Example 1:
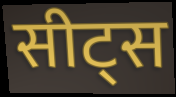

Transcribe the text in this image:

सीट्स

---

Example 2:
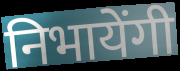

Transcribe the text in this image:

निभायेंगी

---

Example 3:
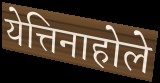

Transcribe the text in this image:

येत्तिनाहोले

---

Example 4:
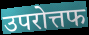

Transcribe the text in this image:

उपरोत्तफ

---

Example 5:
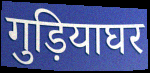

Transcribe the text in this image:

गुड़ियाघर